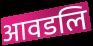
आवडलि